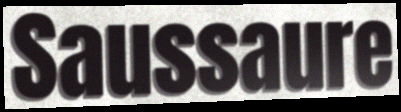
Saussaure